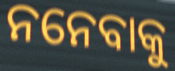
ନନେବାକୁ